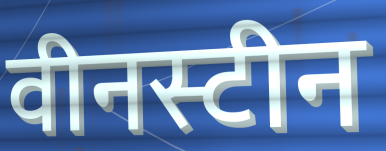
वीनस्टीन